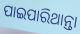
ପାଇପାରିଥାନ୍ତା